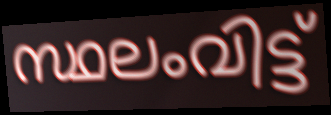
സ്ഥലംവിട്ട്